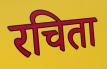
रचिता